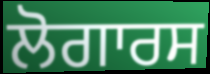
ਲੋਗਾਰਸ